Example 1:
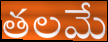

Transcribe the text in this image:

తలమే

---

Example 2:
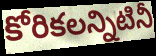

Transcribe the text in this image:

కోరికలన్నిటినీ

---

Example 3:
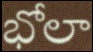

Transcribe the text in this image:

భోలా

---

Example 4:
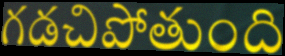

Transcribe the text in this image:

గడచిపోతుంది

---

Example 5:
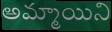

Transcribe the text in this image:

అమ్మాయిని